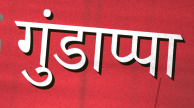
गुंडाप्पा